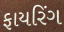
ફાયરિંગ